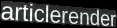
articlerender